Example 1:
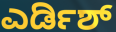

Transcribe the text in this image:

ಎರ್ಡಿಶ್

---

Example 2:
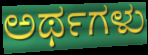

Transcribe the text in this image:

ಅರ್ಥಗಳು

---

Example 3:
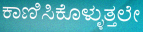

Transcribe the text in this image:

ಕಾಣಿಸಿಕೊಳ್ಳುತ್ತಲೇ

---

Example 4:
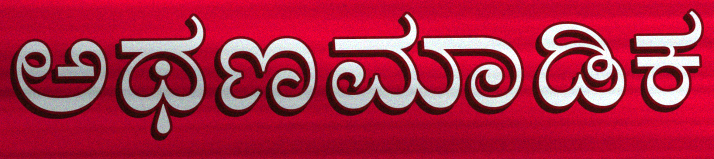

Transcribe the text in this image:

ಅಥಣಮಾಡಿಕ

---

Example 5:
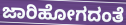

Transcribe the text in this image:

ಜಾರಿಹೋಗದಂತೆ